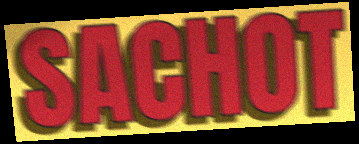
SACHOT